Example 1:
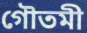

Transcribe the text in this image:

গৌতমী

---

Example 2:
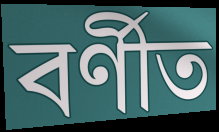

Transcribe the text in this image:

বর্ণীত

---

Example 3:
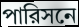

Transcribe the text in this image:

পারিসনে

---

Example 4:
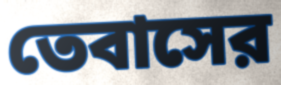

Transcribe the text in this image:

তেবাসের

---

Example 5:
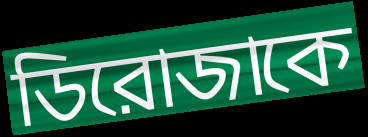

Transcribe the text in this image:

ডিরোজাকে